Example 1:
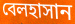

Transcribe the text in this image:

বেলহাসান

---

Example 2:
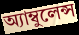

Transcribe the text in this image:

অ্যাম্বুলেন্স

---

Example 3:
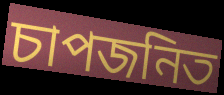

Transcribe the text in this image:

চাপজনিত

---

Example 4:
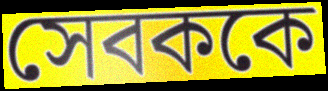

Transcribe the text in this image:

সেবককে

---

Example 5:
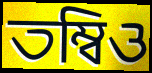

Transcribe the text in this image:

তম্বিও